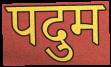
पदुम